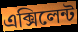
এক্সিলেন্ট